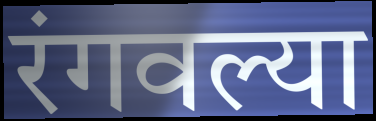
रंगवल्या